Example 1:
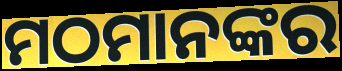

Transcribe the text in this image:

ମଠମାନଙ୍କର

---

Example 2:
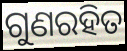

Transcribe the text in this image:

ଗୁଣରହିତ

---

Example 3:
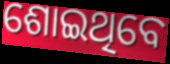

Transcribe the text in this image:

ଶୋଇଥିବେ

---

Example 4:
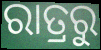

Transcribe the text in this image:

ରାତ୍ରରୁ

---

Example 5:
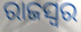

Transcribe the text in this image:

ରାଜସ୍ୱର